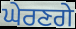
ਘੇਰਣਗੇ